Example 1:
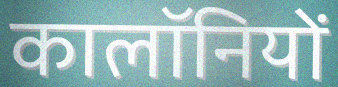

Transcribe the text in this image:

कालॉनियों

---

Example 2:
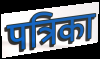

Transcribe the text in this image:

पत्रिका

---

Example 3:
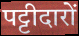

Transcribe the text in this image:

पट्टीदारों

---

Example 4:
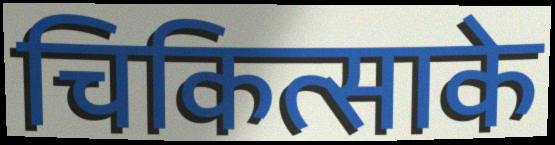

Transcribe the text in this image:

चिकित्साके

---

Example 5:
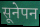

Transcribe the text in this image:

सूनेपन